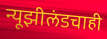
न्यूझीलंडचाही